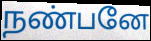
நண்பனே